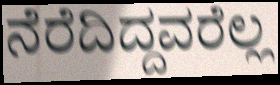
ನೆರೆದಿದ್ದವರೆಲ್ಲ